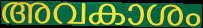
അവകാശം